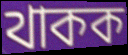
থাকক